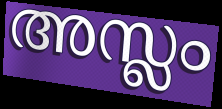
അസ്ലം